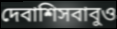
দেবাশিসবাবুও